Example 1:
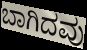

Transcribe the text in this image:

ಬಾಗಿದವು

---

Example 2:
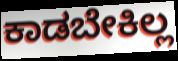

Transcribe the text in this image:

ಕಾಡಬೇಕಿಲ್ಲ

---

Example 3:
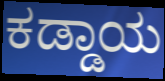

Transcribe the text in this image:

ಕಡ್ಡಾಯ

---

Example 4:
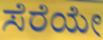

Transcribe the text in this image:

ಸೆರೆಯೇ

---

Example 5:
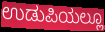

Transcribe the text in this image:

ಉಡುಪಿಯಲ್ಲೂ